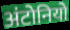
अंटोनियो